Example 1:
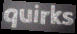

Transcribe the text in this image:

quirks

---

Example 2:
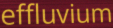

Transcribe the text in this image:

effluvium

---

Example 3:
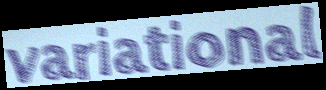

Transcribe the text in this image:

variational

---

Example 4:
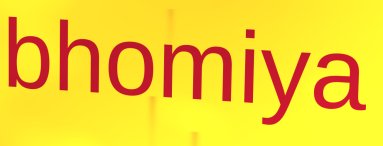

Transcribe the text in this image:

bhomiya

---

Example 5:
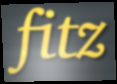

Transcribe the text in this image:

fitz